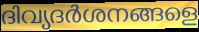
ദിവ്യദർശനങ്ങളെ